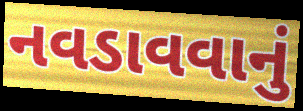
નવડાવવાનું